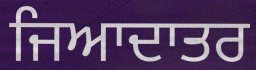
ਜਿਆਦਾਤਰ